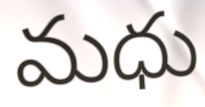
మధు